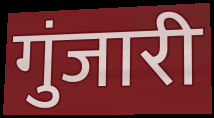
गुंजारी